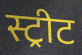
स्ट्रीट